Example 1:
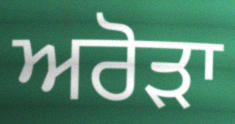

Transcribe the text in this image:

ਅਰੋੜਾ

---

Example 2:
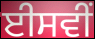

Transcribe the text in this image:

ਈਸਵੀਂ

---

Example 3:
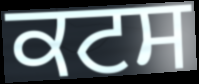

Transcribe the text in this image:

ਕਟਸ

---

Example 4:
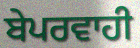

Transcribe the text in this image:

ਬੇਪਰਵਾਹੀ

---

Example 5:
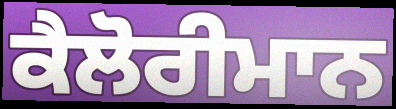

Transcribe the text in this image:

ਕੈਲੋਰੀਮਾਨ